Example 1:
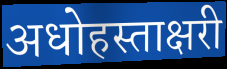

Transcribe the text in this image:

अधोहस्ताक्षरी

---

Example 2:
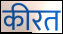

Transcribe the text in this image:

कीरत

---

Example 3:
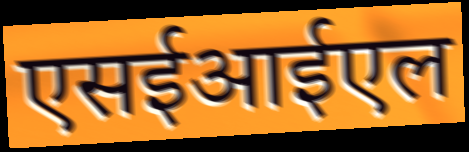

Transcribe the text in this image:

एसईआईएल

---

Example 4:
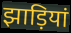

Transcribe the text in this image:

झाड़ियां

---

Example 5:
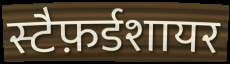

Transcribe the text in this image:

स्टैफ़र्डशायर